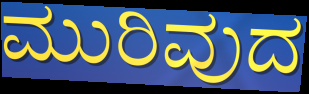
ಮುರಿವುದ